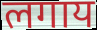
लगाय